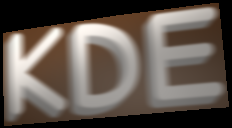
KDE